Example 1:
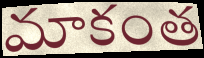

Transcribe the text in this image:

మాకంత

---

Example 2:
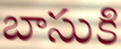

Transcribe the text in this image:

బాసుకి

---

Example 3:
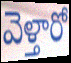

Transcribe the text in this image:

వెళ్తారో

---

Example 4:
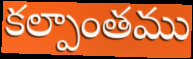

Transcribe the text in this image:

కల్పాంతము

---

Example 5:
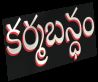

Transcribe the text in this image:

కర్మబన్ధం